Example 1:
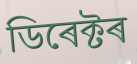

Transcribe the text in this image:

ডিৰেক্টৰ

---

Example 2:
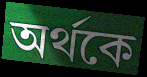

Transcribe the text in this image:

অৰ্থকে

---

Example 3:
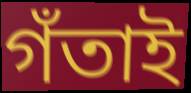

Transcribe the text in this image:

গঁতাই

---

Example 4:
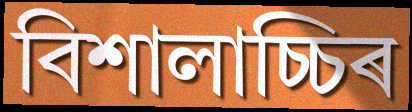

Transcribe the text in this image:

বিশালাচ্চিৰ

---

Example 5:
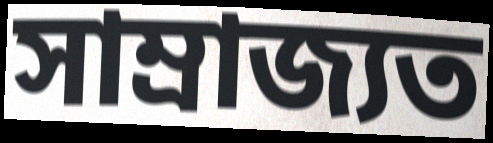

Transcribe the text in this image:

সাম্ৰাজ্যত